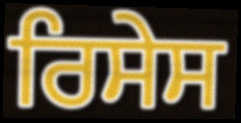
ਰਿਸੇਸ